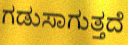
ಗಡುಸಾಗುತ್ತದೆ